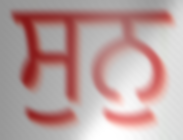
ਸੁਨੁ